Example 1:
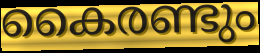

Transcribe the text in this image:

കൈരണ്ടും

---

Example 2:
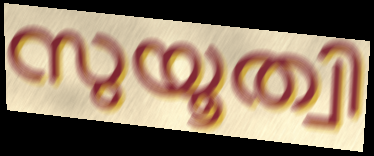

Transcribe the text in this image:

സുയൂത്വി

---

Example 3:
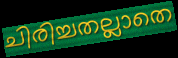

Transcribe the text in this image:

ചിരിച്ചതല്ലാതെ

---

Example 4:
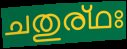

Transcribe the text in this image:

ചതുര്ഥഃ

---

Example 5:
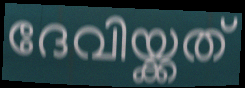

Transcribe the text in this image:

ദേവിയ്ക്കത്